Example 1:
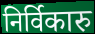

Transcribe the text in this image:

निर्विकारु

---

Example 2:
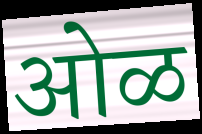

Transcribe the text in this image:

ओळ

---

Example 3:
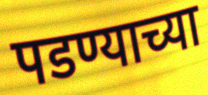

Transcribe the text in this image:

पडण्याच्या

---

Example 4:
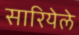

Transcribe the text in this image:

सारियेले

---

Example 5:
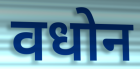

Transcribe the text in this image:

वधोन